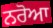
ਨਰੋਆ